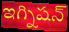
ఇగ్నిషన్